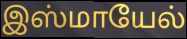
இஸ்மாயேல்